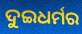
ଦୁଇଧର୍ମର